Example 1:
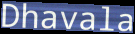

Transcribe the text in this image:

Dhavala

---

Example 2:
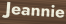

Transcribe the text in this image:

Jeannie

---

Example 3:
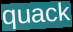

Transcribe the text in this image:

quack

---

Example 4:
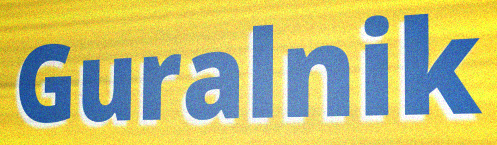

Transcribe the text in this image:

Guralnik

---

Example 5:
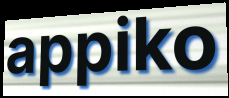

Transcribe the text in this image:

appiko